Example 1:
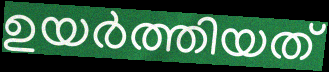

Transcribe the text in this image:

ഉയർത്തിയത്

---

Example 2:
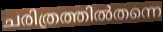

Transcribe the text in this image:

ചരിത്രത്തിൽതന്നെ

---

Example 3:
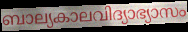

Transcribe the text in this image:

ബാല്യകാലവിദ്യാഭ്യാസം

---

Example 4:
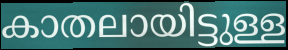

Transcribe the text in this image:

കാതലായിട്ടുള്ള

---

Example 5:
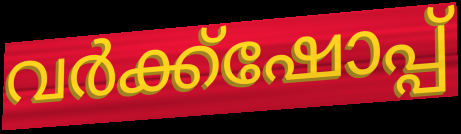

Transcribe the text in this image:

വർക്ക്ഷോപ്പ്